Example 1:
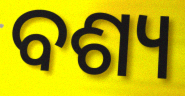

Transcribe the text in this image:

ବଶ୍ୟ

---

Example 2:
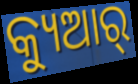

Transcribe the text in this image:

କ୍ୟୁଆର୍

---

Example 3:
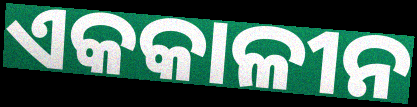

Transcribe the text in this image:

ଏକକାଳୀନ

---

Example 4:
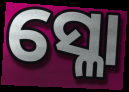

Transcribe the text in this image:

ସ୍ଳୋ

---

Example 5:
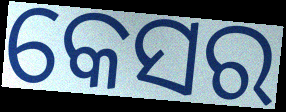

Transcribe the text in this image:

କେସର